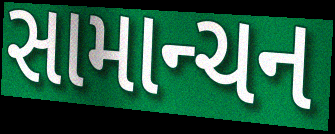
સામાન્ચન